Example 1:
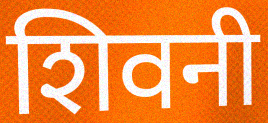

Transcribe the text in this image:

शिवनी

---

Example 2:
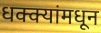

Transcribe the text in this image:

धक्क्यांमधून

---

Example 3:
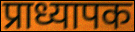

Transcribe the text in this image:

प्राध्यापक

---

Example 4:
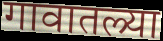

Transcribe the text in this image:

गावातल्या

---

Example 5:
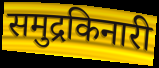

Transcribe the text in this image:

समुद्रकिनारी